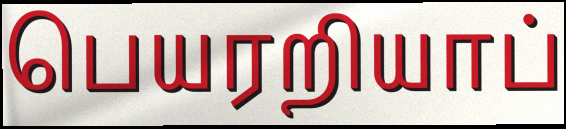
பெயரறியாப்